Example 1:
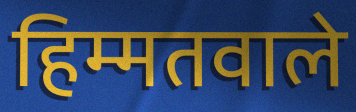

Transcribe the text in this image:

हिम्मतवाले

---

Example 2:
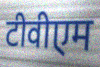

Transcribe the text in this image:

टीवीएम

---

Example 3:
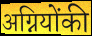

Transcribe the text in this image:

अग्नियोंकी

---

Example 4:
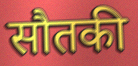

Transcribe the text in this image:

सौतकी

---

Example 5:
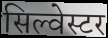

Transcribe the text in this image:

सिल्वेस्टर